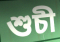
শুচী